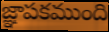
జ్ఞాపకముంది